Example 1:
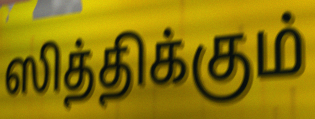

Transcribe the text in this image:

ஸித்திக்கும்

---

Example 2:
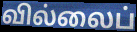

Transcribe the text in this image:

வில்லைப்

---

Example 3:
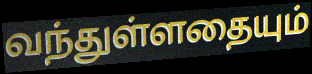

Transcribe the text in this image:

வந்துள்ளதையும்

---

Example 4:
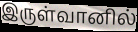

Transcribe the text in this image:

இருள்வானில்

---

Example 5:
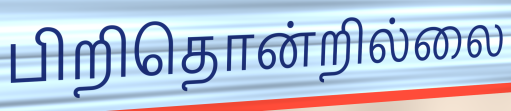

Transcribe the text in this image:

பிறிதொன்றில்லை